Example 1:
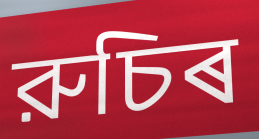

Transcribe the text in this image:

ৰুচিৰ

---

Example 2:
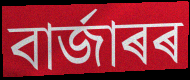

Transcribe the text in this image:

বাৰ্জাৰৰ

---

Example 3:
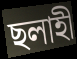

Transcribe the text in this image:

ছলাহী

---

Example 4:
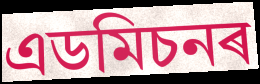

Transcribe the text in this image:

এডমিচনৰ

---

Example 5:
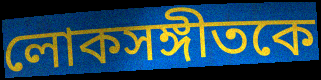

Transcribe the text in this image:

লোকসঙ্গীতকে